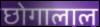
छोगालाल